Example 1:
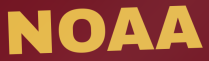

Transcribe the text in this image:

NOAA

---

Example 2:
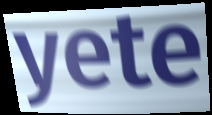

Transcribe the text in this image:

yete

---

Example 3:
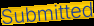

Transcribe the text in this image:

Submitted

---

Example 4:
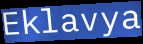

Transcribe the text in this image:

Eklavya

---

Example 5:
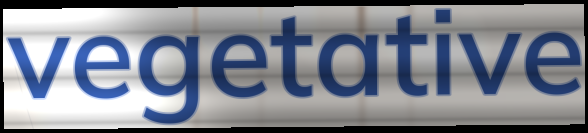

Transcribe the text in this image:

vegetative